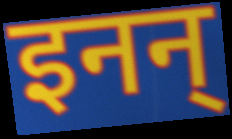
इनन्